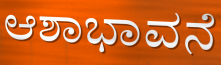
ಆಶಾಭಾವನೆ